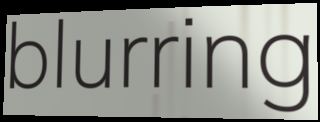
blurring